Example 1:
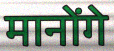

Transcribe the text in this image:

मानोंगे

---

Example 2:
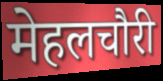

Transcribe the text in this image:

मेहलचौरी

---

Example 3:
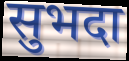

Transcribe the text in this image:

सुभदा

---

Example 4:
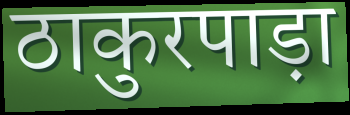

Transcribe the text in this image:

ठाकुरपाड़ा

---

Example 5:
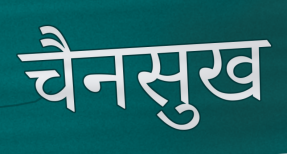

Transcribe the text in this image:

चैनसुख